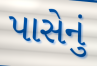
પાસેનું